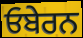
ਓਬੇਰਨ